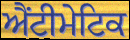
ਐਂਟੀਮੇਟਿਕ